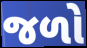
જળો